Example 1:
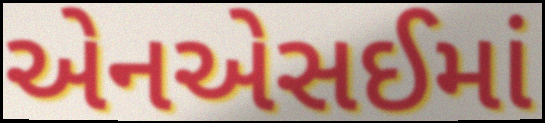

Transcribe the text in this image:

એનએસઈમાં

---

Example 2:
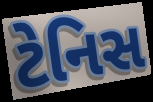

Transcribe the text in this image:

ટેનિસ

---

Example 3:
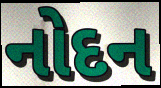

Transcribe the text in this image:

નોદન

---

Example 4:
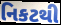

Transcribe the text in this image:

નિકટથી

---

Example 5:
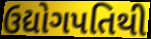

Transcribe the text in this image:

ઉદ્યોગપતિથી